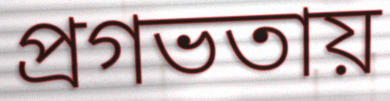
প্রগভতায়